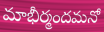
మాభీర్మందమనో